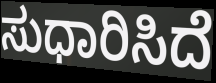
ಸುಧಾರಿಸಿದೆ